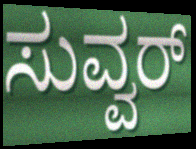
ಸುವ್ವರ್